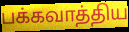
பக்கவாத்திய